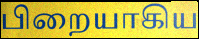
பிறையாகிய